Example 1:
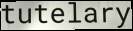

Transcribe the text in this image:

tutelary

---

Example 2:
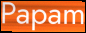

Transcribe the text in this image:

Papam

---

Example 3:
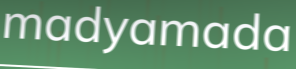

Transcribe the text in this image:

madyamada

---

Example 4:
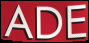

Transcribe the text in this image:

ADE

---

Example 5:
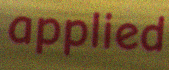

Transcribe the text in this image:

applied